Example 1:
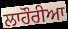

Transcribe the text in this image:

ਲਾਹੌਰੀਆ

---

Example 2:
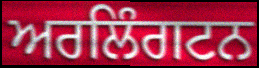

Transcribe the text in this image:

ਅਰਲਿੰਗਟਨ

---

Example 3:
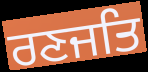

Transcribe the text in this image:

ਰਣਜਤਿ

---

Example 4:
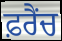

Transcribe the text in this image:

ਫ਼ਰੈਂਚ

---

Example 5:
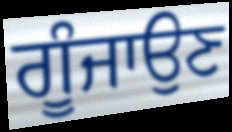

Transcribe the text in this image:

ਗੂੰਜਾਉਣ